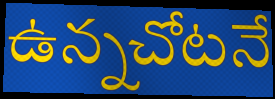
ఉన్నచోటనే